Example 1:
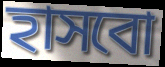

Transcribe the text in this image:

হাসবো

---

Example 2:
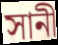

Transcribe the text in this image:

সানী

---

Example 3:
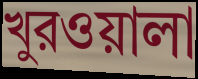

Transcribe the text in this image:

খুরওয়ালা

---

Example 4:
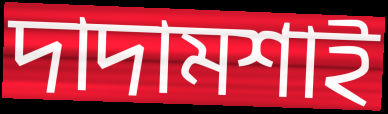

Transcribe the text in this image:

দাদামশাই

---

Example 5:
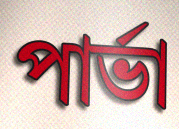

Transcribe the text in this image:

পার্ভা